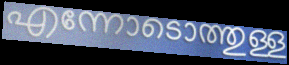
എന്നോടൊത്തുള്ള